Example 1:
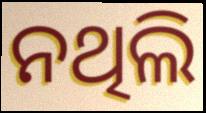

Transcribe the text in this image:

ନଥିଲି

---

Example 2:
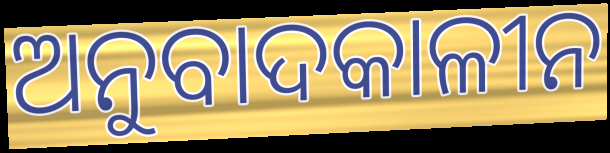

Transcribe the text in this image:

ଅନୁବାଦକାଳୀନ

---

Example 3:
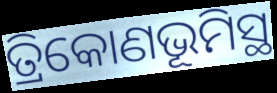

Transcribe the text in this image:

ତ୍ରିକୋଣଭୂମିସ୍ଥ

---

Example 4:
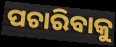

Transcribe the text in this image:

ପଚାରିବାକୁ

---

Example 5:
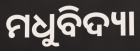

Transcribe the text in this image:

ମଧୁବିଦ୍ୟା